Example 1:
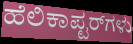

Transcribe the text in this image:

ಹೆಲಿಕಾಪ್ಟರ್‌ಗಳು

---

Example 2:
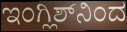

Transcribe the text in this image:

ಇಂಗ್ಲಿಶ್‌ನಿಂದ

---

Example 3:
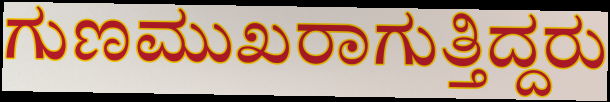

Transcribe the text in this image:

ಗುಣಮುಖರಾಗುತ್ತಿದ್ದರು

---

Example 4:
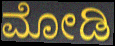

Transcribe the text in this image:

ಮೋಡಿ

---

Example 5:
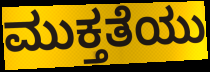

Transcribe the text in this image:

ಮುಕ್ತತೆಯು